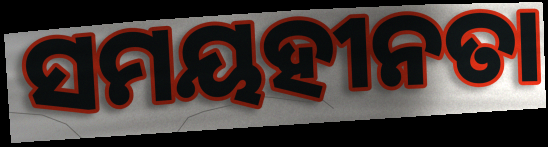
ସମୟହୀନତା